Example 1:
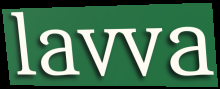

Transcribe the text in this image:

lavva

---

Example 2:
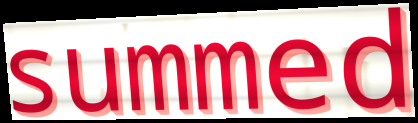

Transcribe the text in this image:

summed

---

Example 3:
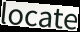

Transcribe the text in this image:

locate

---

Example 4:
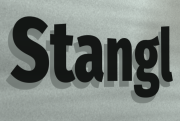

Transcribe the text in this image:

Stangl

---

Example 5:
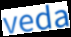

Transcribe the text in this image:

veda